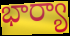
భార్యా